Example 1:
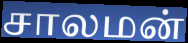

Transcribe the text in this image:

சாலமன்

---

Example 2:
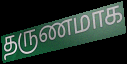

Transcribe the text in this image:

தருணமாக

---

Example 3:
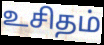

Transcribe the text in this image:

உசிதம்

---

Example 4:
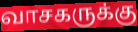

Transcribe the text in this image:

வாசகருக்கு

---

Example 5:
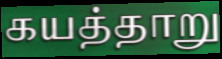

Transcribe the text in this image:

கயத்தாறு